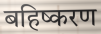
बहिष्करण